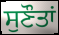
ਸੁਣੌਤਾਂ